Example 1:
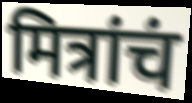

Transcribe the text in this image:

मित्रांचं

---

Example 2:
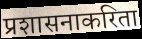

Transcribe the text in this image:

प्रशासनाकरिता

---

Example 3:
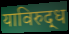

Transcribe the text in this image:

याविरुद्ध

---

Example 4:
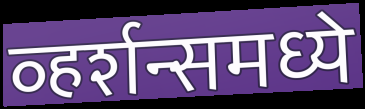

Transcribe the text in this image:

व्हर्शन्समध्ये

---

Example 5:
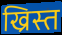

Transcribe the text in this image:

ख्रिस्त